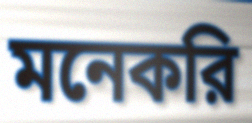
মনেকরি